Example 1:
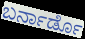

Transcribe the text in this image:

ಬರ್ನಾರ್ಡೊ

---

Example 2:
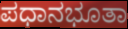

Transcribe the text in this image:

ಪಧಾನಭೂತಾ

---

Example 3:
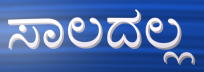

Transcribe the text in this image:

ಸಾಲದಲ್ಲ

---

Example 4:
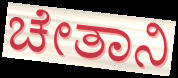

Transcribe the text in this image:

ಚೇತಾನಿ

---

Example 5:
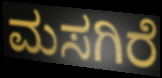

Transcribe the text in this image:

ಮಸಗಿರೆ